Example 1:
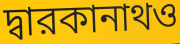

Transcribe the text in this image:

দ্বারকানাথও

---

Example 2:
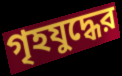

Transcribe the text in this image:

গৃহযুদ্ধের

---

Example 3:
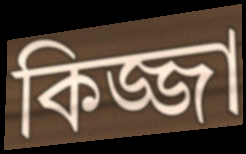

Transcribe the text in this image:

কিজ্জা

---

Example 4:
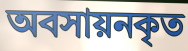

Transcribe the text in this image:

অবসায়নকৃত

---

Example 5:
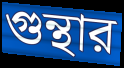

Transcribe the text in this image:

গুন্থার